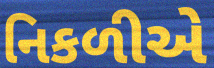
નિકળીએ